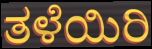
ತಳೆಯಿರಿ